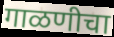
गाळणीचा